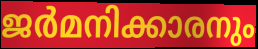
ജർമനിക്കാരനും